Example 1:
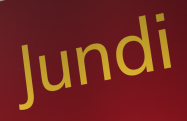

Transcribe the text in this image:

Jundi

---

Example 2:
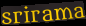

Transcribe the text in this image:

srirama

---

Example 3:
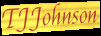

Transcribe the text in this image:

TJJohnson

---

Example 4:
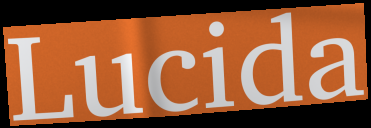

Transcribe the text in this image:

Lucida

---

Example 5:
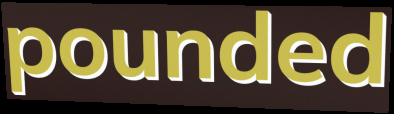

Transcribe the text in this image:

pounded